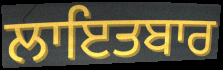
ਲਾਇਤਬਾਰ